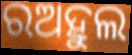
ରଅହୁଲ